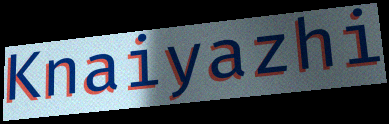
Knaiyazhi